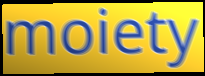
moiety